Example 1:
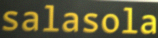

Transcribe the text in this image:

salasola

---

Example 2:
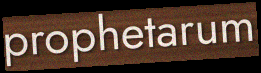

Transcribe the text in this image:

prophetarum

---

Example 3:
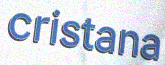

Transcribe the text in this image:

cristana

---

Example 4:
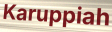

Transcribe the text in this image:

Karuppiah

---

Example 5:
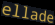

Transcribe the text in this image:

ellade